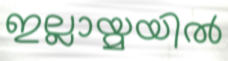
ഇല്ലായ്മയിൽ